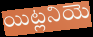
యిట్లనియె